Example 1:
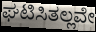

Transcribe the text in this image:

ಘಟಿಸಿತಲ್ಲವೇ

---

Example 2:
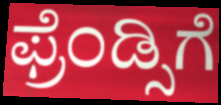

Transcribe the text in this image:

ಫ್ರೆಂಡ್ಸಿಗೆ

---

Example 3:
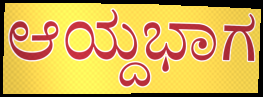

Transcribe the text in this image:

ಆಯ್ದಭಾಗ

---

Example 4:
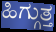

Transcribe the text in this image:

ಹಿಗ್ಗುತ್ತ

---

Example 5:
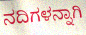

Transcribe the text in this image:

ನದಿಗಳನ್ನಾಗಿ